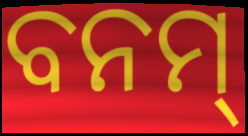
ବନମ୍